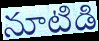
నూటిడి